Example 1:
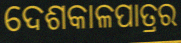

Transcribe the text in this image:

ଦେଶକାଳପାତ୍ରର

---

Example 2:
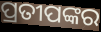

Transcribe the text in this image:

ପ୍ରତୀପଙ୍କର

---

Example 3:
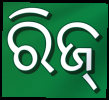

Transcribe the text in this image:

ରିଜ୍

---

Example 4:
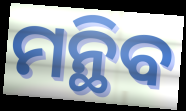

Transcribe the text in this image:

ମନ୍ଥିବ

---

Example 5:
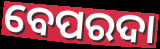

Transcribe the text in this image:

ବେପରଦା